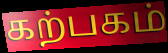
கற்பகம்